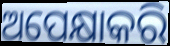
ଅପେକ୍ଷାକରି